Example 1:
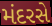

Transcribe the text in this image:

મંદરસે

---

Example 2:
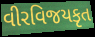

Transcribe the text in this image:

વીરવિજયકૃત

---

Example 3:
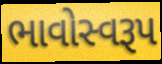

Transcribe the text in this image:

ભાવોસ્વરૂપ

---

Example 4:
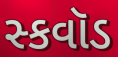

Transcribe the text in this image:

સ્કવૉડ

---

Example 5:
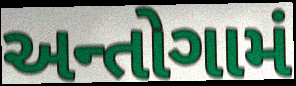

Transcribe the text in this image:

અન્તોગામં